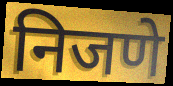
निजणे